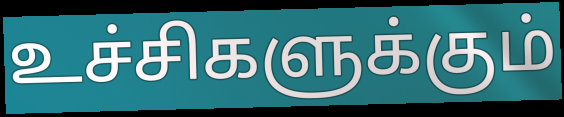
உச்சிகளுக்கும்